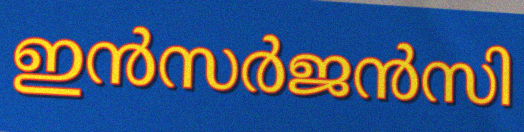
ഇൻസർജൻസി